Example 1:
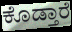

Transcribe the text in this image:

ಕೊಡ್ತಾರೆ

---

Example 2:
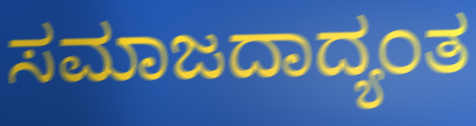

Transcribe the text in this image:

ಸಮಾಜದಾದ್ಯಂತ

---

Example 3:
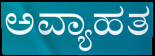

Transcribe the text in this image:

ಅವ್ಯಾಹತ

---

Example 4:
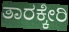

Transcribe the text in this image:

ತಾರಕ್ಕೇರಿ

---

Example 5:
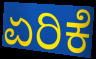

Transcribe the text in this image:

ಏರಿಕೆ